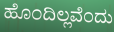
ಹೊಂದಿಲ್ಲವೆಂದು